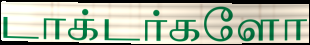
டாக்டர்களோ